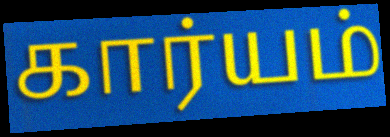
கார்யம்